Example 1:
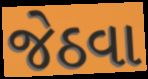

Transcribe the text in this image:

જેઠવા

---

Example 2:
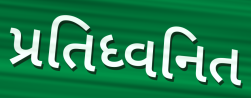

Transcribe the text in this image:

પ્રતિધ્વનિત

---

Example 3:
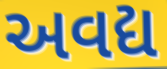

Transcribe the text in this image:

અવદ્ય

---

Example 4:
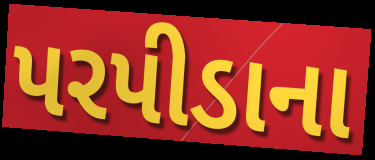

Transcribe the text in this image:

પરપીડાના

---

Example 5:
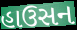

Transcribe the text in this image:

હાઉસન